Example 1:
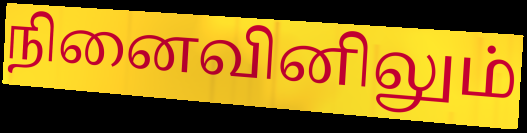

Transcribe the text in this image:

நினைவினிலும்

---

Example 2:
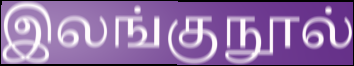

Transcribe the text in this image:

இலங்குநூல்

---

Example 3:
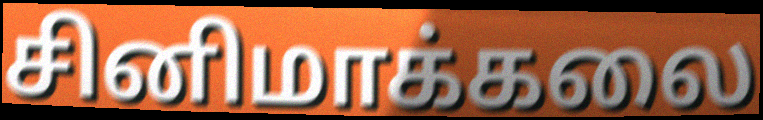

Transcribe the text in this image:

சினிமாக்கலை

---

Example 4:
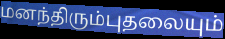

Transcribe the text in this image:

மனந்திரும்புதலையும்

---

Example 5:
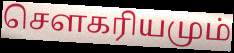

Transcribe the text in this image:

சௌகரியமும்